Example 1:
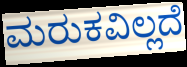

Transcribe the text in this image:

ಮರುಕವಿಲ್ಲದೆ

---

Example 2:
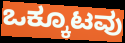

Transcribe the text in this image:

ಒಕ್ಕೂಟವು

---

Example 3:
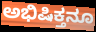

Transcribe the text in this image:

ಅಭಿಷಿಕ್ತನೂ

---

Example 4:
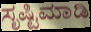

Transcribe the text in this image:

ಸೃಷ್ಟಿಮಾಡಿ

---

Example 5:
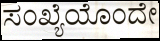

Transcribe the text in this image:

ಸಂಖ್ಯೆಯೊಂದೇ